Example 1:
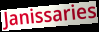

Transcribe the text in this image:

Janissaries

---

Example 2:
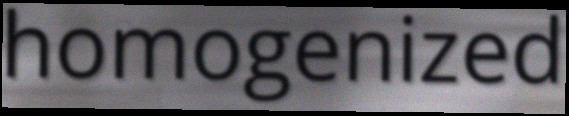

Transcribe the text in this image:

homogenized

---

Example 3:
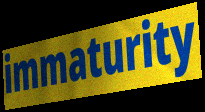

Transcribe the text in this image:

immaturity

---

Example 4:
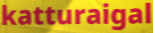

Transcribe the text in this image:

katturaigal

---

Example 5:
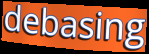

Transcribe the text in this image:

debasing